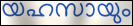
യഹസായും